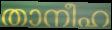
താനീഹ